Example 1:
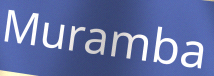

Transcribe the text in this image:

Muramba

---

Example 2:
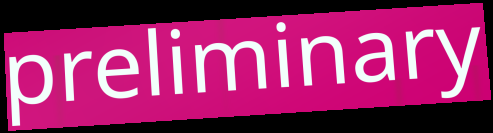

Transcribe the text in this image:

preliminary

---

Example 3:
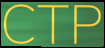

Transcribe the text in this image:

CTP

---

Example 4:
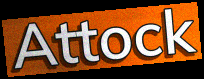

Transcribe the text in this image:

Attock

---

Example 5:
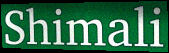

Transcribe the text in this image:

Shimali